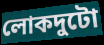
লোকদুটো